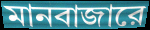
মানবাজারে